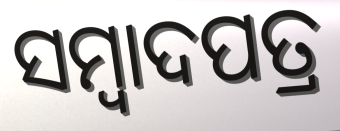
ସମ୍ୱାଦପତ୍ର